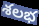
శలభ